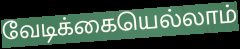
வேடிக்கையெல்லாம்